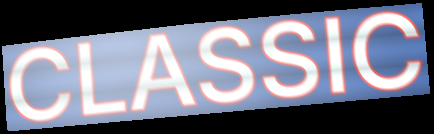
CLASSIC